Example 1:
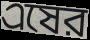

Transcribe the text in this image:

এষের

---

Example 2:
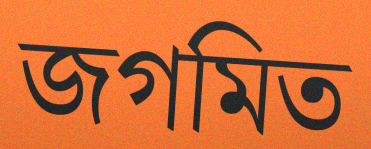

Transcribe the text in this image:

জগমিত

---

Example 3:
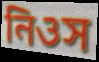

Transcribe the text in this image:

নিওস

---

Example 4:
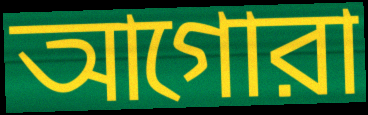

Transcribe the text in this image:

আগোরা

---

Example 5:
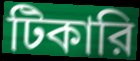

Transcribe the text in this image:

টিকারি